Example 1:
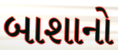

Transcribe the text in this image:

બાશાનો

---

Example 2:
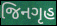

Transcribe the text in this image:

જિનગૃહ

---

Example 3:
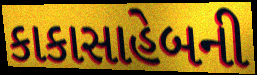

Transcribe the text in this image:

કાકાસાહેબની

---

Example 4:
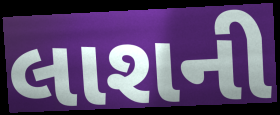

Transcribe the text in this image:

લાશની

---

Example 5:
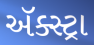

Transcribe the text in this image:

ઍક્સ્ટ્રા